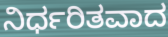
ನಿರ್ಧರಿತವಾದ